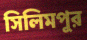
সিলিমপুর